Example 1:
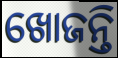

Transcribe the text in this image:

ଖୋଜନ୍ତି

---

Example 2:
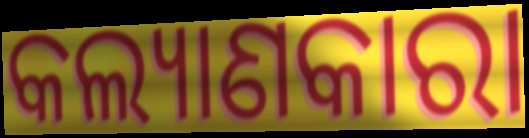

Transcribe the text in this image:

କଲ୍ୟାଣକାରା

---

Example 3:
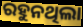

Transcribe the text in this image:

ରହୁନଥିଲା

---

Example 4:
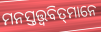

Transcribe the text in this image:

ମନସ୍ତତ୍ତ୍ୱବିତ୍‌ମାନେ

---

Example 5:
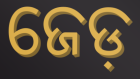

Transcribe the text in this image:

ଜେଡ଼